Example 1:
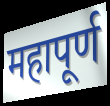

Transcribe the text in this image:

महापूर्ण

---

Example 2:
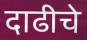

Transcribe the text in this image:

दाढीचे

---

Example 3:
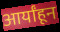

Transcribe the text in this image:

आर्यांहून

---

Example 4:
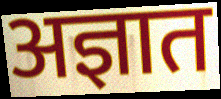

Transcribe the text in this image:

अज्ञात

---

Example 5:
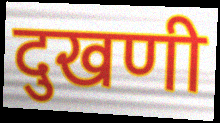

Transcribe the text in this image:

दुखणी